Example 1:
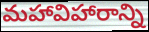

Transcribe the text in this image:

మహావిహారాన్ని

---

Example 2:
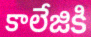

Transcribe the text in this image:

కాలేజికి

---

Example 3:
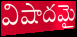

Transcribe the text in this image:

విషాదమై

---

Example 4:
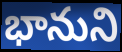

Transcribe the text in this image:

భానుని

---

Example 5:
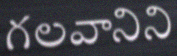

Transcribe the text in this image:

గలవానిని